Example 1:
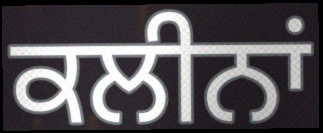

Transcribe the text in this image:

ਕਲੀਨਾਂ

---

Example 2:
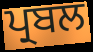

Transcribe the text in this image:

ਪ੍ਰਬਲ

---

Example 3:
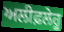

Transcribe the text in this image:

ਅਲੀਫ਼ਲੇਹੂ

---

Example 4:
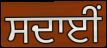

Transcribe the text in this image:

ਸਦਾਈਂ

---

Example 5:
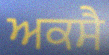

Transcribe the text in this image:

ਅਕਸੈ